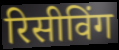
रिसीविंग